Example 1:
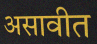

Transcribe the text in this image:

असावीत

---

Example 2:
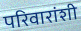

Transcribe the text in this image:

परिवारांशी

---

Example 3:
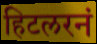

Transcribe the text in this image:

हिटलरनं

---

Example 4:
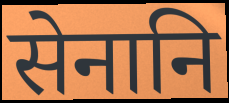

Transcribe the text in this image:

सेनानि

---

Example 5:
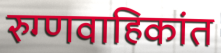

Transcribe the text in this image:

रुग्णवाहिकांत